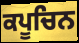
ਕਪੂਚਿਨ